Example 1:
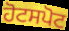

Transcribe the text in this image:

ਹੋਟਸਪੋਟ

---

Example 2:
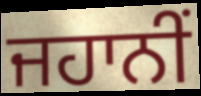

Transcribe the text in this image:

ਜਹਾਨੀਂ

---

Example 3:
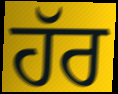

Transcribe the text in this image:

ਹੱਰ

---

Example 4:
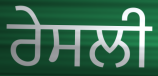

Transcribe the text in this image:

ਰੇਸਲੀ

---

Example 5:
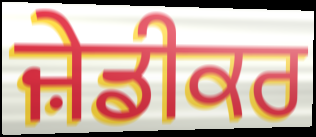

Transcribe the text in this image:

ਜ਼ੇਡੀਕਰ